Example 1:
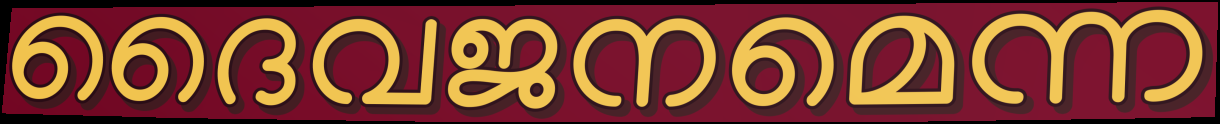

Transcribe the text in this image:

ദൈവജനമെന്ന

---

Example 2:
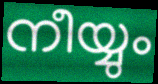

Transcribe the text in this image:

നീയ്യും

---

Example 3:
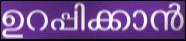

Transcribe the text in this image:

ഉറപ്പിക്കാൻ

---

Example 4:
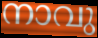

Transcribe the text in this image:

നാവു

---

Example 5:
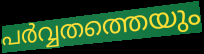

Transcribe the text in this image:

പർവ്വതത്തെയും